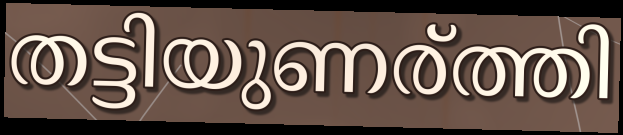
തട്ടിയുണര്ത്തി